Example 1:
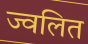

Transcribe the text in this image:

ज्वलित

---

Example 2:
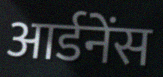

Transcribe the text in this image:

आर्डनेंस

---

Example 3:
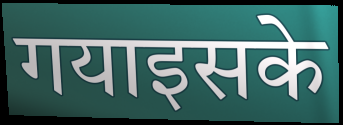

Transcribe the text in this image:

गयाइसके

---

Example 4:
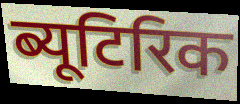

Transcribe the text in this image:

ब्यूटिरिक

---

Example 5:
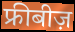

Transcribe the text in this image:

फ्रीबीज़